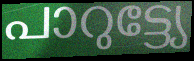
പാറുട്ട്യേ